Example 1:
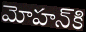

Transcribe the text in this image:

మోహన్‌కి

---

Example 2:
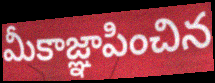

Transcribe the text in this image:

మీకాజ్ఞాపించిన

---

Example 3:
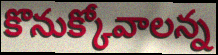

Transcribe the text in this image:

కొనుక్కోవాలన్న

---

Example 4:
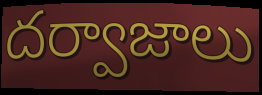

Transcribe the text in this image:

దర్వాజాలు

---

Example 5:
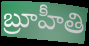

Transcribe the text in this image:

బ్రూహీతి